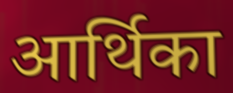
आर्थिका